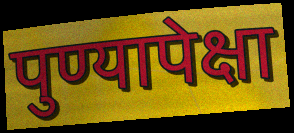
पुण्यापेक्षा